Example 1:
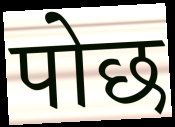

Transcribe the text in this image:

पोछ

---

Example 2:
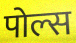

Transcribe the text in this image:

पोल्‍स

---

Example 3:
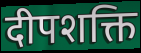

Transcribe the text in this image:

दीपशक्ति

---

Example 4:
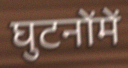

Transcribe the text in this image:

घुटनोंमें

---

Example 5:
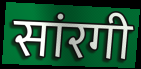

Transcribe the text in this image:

सांरगी